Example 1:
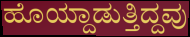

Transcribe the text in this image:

ಹೊಯ್ದಾಡುತ್ತಿದ್ದವು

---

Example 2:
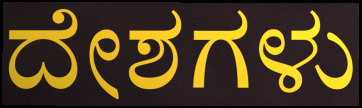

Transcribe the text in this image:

ದೇಶಗಳು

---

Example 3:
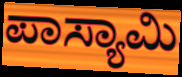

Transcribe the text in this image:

ಪಾಸ್ಯಾಮಿ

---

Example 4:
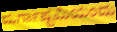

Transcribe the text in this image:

ದುರ್ಗಾಷ್ಟಮಿಯಂದು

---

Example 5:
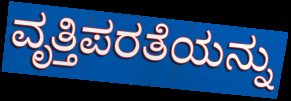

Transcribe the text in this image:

ವೃತ್ತಿಪರತೆಯನ್ನು